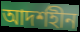
আদৰ্শহীন